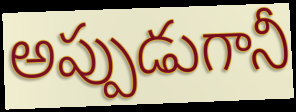
అప్పుడుగానీ